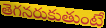
తెగనరుకుతుంటే